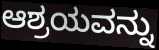
ಆಶ್ರಯವನ್ನು